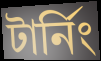
টার্নিং